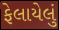
ફેલાયેલું